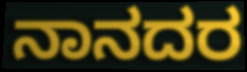
ನಾನದರ